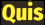
Quis